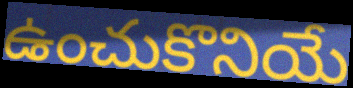
ఉంచుకొనియే